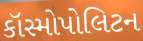
કૉસ્મોપોલિટન